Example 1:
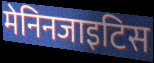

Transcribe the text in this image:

मेनिनजाइटिस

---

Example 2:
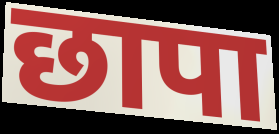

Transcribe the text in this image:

छापा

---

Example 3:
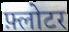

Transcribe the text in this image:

फ़्लोटर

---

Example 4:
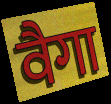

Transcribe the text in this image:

वैगा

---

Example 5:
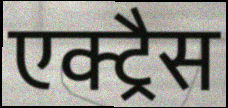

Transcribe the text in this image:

एक्ट्रैस